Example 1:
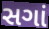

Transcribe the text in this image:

સગાં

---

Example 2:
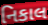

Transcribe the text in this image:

નિકાલ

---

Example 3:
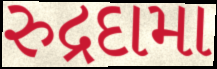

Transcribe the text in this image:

રુદ્રદામા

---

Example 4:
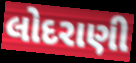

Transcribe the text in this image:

લોદરાણી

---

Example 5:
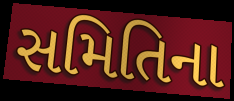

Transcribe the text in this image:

સમિતિના